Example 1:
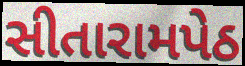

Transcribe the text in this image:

સીતારામપેઠ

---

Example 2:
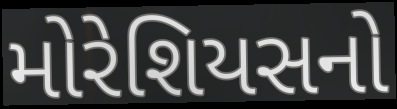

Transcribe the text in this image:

મોરેશિયસનો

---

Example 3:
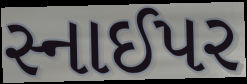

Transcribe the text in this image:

સ્નાઈપર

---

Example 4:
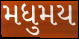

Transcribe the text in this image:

મધુમય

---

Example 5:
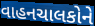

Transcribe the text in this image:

વાહનચાલકોને